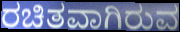
ರಚಿತವಾಗಿರುವ